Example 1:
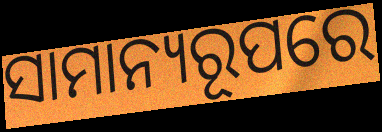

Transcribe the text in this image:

ସାମାନ୍ୟରୂପରେ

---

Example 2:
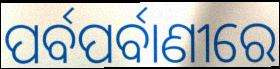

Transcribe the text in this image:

ପର୍ବପର୍ବାଣୀରେ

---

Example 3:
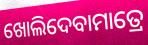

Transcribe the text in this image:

ଖୋଲିଦେବାମାତ୍ରେ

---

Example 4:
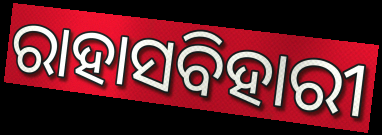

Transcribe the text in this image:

ରାହାସବିହାରୀ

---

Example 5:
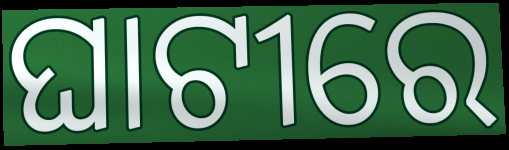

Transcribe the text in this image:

ଘାଟୀରେ